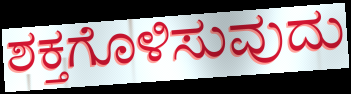
ಶಕ್ತಗೊಳಿಸುವುದು